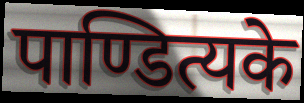
पाण्डित्यके